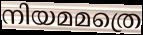
നിയമമത്രെ